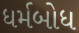
ધર્મબોધ